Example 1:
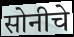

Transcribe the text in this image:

सोनीचे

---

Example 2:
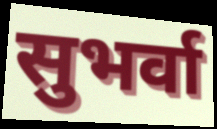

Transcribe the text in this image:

सुभर्वा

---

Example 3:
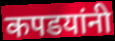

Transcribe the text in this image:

कपडयांनी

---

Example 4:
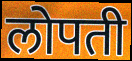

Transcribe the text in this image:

लोपती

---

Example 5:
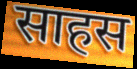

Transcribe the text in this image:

साहस